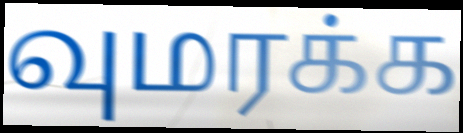
வுமரக்க